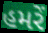
હમરેં